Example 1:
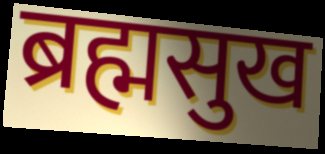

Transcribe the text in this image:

ब्रह्मसुख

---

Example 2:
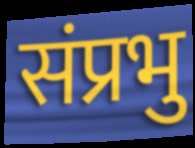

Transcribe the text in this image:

संप्रभु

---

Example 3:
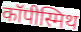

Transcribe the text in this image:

कॉपीस्मिथ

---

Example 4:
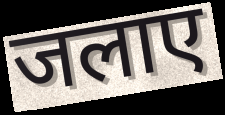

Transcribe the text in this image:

जलाए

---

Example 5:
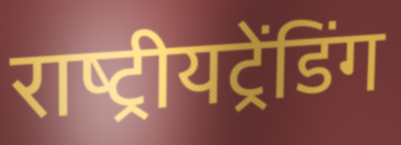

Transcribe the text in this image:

राष्ट्रीयट्रेंडिंग